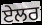
ਏਲਰ